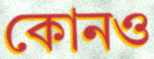
কোনও